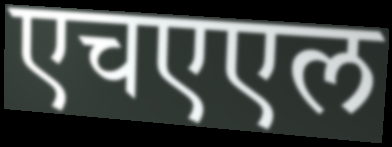
एचएएल